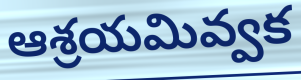
ఆశ్రయమివ్వక